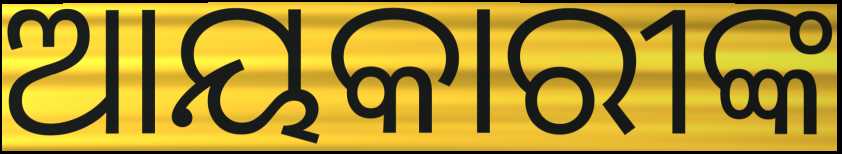
ଆୟକାରୀଙ୍କ